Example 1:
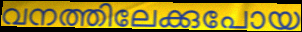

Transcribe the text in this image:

വനത്തിലേക്കുപോയ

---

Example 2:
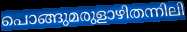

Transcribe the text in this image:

പൊങ്ങുമരുളാഴിതന്നിലി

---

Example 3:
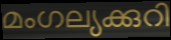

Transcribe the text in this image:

മംഗല്യക്കുറി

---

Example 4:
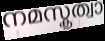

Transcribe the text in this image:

നമസ്കൃത്വാ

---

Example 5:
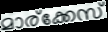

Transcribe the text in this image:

മാര്ക്കേസ്